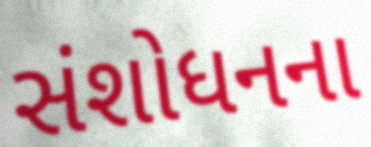
સંશોધનના